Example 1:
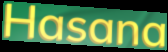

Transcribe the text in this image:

Hasana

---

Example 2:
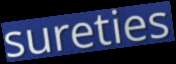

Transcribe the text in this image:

sureties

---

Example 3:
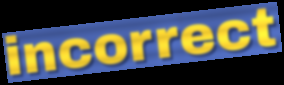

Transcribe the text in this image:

incorrect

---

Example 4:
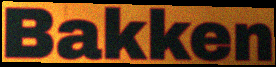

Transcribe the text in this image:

Bakken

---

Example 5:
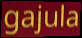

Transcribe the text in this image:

gajula